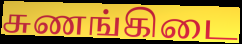
சுணங்கிடை